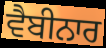
ਵੈਬੀਨਾਰ